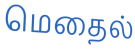
மெதைல்